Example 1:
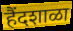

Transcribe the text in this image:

हैंदशाळा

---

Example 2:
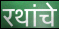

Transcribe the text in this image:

रथांचे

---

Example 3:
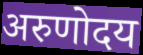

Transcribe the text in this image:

अरुणोदय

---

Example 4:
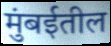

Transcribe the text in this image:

मुंबईतील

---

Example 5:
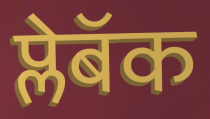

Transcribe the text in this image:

प्लेबॅक